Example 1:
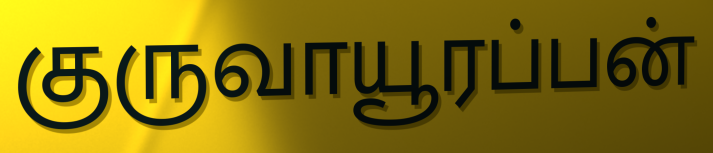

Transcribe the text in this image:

குருவாயூரப்பன்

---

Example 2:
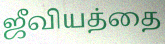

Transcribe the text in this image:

ஜீவியத்தை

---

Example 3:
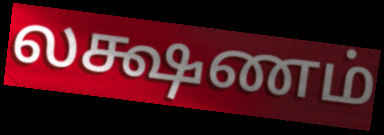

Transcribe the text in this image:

லக்ஷணம்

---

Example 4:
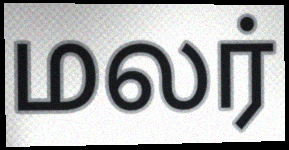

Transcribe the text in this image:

மலர்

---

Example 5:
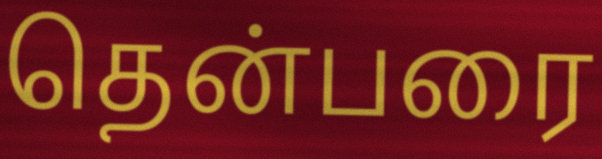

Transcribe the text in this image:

தென்பரை